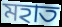
মহাত